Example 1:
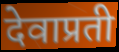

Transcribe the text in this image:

देवाप्रती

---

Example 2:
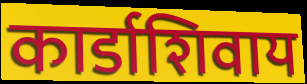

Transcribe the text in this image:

कार्डाशिवाय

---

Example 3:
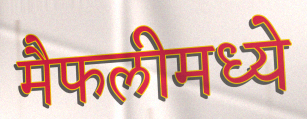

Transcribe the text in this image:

मैफलीमध्ये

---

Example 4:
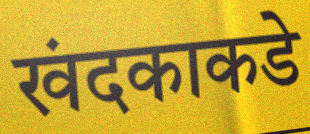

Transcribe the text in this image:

खंदकाकडे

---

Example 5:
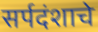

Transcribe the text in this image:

सर्पदंशाचे